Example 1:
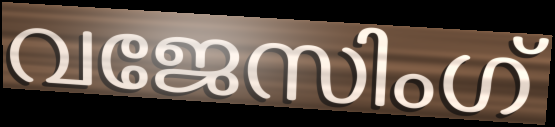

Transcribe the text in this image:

വജേസിംഗ്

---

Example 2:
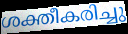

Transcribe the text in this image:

ശക്തീകരിച്ചു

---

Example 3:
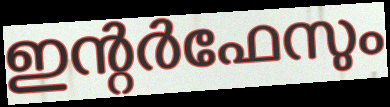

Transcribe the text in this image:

ഇന്റർഫേസും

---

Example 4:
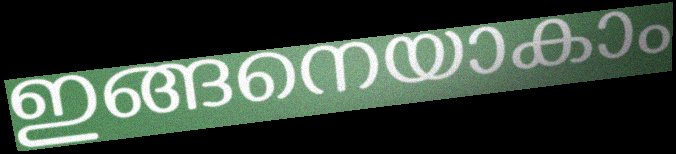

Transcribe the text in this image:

ഇങ്ങനെയാകാം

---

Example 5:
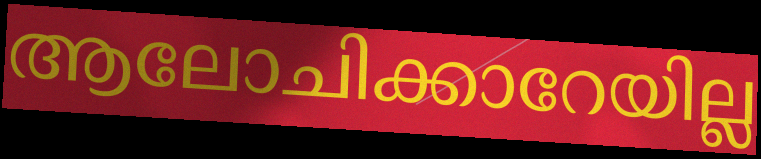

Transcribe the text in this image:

ആലോചിക്കാറേയില്ല